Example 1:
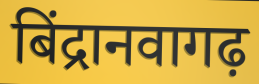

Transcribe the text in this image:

बिंद्रानवागढ़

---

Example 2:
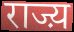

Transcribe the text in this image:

राज्य़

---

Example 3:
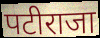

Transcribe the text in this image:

पटीराजा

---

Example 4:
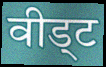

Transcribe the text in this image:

वीड्ट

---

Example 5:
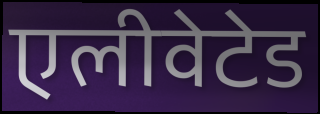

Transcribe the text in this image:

एलीवेटेड